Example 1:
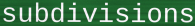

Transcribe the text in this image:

subdivisions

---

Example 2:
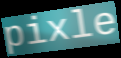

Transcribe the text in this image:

pixle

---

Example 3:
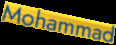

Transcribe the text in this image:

Mohammad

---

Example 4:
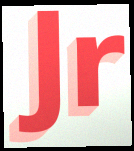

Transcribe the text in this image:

Jr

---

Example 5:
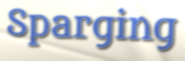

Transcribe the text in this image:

Sparging